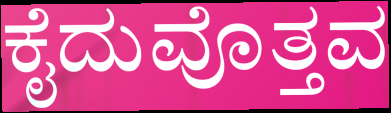
ಕೈದುವೊತ್ತವ